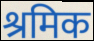
श्रमिक